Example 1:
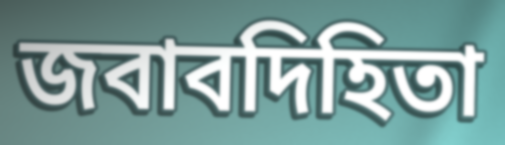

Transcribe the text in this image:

জবাবদিহিতা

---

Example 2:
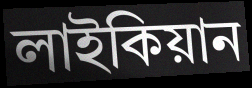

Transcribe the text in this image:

লাইকিয়ান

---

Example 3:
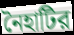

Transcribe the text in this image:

নৈহাটির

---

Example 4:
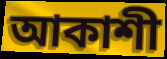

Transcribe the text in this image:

আকাশী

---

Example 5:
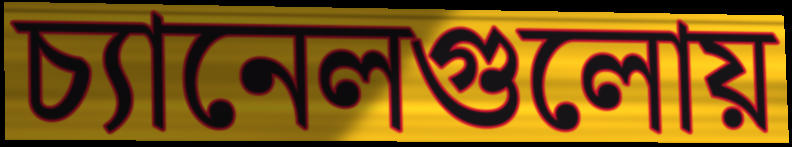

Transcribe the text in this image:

চ্যানেলগুলোয়